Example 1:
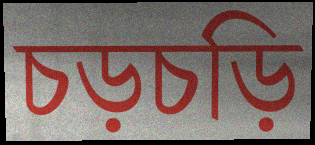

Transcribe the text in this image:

চড়চড়ি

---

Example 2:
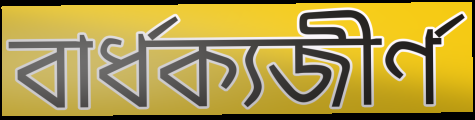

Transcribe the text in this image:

বার্ধক্যজীর্ণ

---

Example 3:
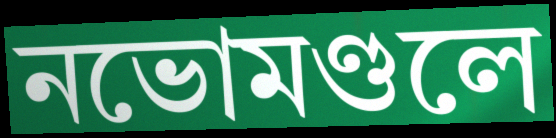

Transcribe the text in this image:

নভোমণ্ডলে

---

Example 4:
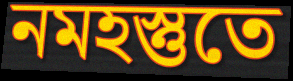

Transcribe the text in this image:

নমহস্তুতে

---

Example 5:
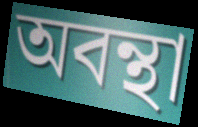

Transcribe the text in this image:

অবন্থা